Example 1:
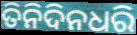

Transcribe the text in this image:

ତିନିଦିନଧରି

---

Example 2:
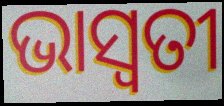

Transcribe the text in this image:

ଭାସ୍ବତୀ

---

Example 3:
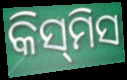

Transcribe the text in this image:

କିସ୍‌ମିସ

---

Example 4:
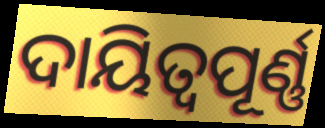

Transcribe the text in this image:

ଦାୟିତ୍ବପୂର୍ଣ୍ଣ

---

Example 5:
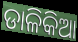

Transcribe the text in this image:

ଡାଳିକିଆ